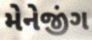
મેનેજીંગ